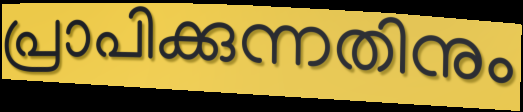
പ്രാപിക്കുന്നതിനും